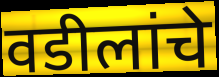
वडीलांचे